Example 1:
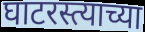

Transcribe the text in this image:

घाटरस्त्याच्या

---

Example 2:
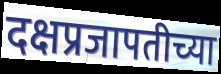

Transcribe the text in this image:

दक्षप्रजापतीच्या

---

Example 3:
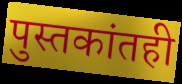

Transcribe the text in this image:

पुस्तकांतही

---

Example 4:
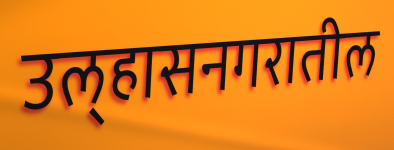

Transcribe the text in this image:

उल्हासनगरातील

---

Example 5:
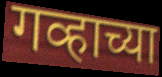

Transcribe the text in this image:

गव्हाच्या